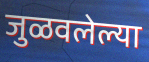
जुळवलेल्या